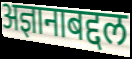
अज्ञानाबद्दल